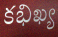
కభిఖ్య